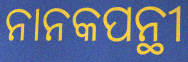
ନାନକପନ୍ଥୀ